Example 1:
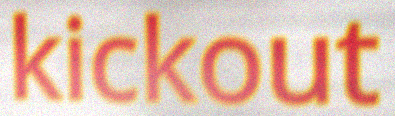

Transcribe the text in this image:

kickout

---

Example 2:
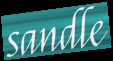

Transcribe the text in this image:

sandle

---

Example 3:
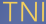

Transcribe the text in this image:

TNI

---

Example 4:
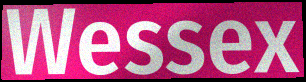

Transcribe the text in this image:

Wessex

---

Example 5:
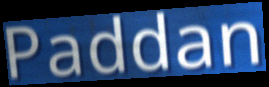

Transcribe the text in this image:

Paddan